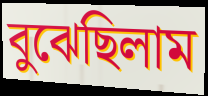
বুঝেছিলাম